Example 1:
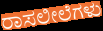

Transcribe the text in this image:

ರಾಸಲೀಲೆಗಳು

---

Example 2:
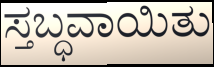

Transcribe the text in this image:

ಸ್ತಬ್ಧವಾಯಿತು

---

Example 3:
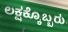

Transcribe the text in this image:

ಲಕ್ಷಕ್ಕೊಬ್ಬರು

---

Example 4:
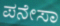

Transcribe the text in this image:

ಪನೇಸಾ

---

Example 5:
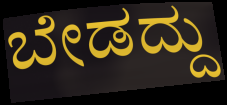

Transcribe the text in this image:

ಬೇಡದ್ದು